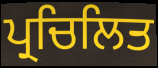
ਪ੍ਰਚਿਲਿਤ